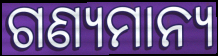
ଗଣ୍ୟମାନ୍ୟ